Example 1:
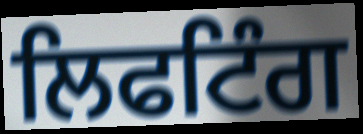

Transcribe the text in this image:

ਲਿਫਟਿੰਗ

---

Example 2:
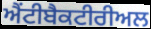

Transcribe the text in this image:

ਐਂਟੀਬੈਕਟੀਰੀਅਲ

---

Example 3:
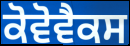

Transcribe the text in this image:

ਕੋਵੋਵੈਕਸ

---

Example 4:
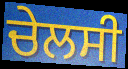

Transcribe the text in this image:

ਚੇਲਸੀ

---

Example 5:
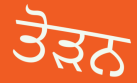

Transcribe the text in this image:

ਤੋੜਨ